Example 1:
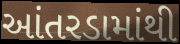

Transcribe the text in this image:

આંતરડામાંથી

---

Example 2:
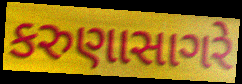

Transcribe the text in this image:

કરુણાસાગરે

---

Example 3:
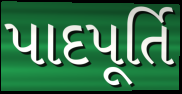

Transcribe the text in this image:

પાદપૂર્તિ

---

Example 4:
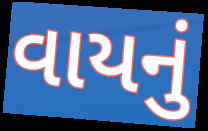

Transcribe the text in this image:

વાયનું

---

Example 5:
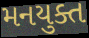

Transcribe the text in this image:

મનયુક્ત